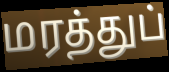
மரத்துப்